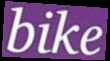
bike